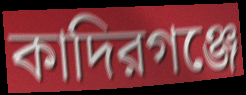
কাদিরগঞ্জে